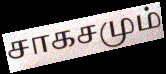
சாகசமும்